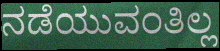
ನಡೆಯುವಂತಿಲ್ಲ